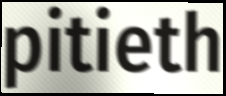
pitieth